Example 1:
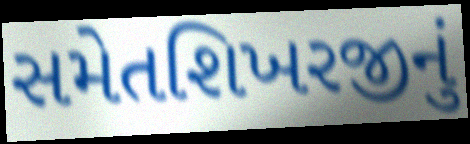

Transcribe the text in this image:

સમેતશિખરજીનું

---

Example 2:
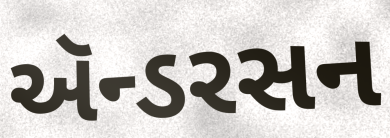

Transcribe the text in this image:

ઍન્ડરસન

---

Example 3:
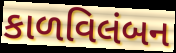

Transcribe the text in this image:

કાળવિલંબન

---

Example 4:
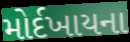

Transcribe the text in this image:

મોર્દખાયના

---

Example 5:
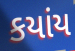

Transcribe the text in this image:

કયાંય